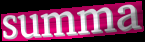
summa